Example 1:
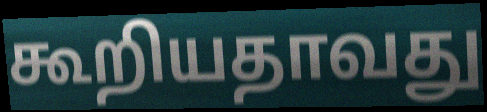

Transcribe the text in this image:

கூறியதாவது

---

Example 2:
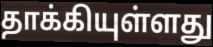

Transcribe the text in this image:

தாக்கியுள்ளது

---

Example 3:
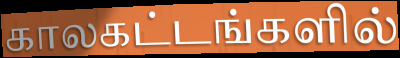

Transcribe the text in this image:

காலகட்டங்களில்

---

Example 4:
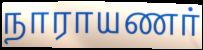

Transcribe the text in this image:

நாராயணர்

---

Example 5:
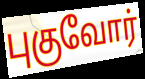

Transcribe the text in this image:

புகுவோர்